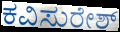
ಕವಿಸುರೇಶ್